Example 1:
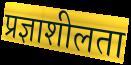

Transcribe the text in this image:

प्रज्ञाशीलता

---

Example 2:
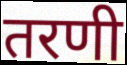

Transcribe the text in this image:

तरणी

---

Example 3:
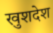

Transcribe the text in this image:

खुशदेश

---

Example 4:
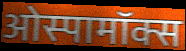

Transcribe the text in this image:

ओस्पामॉक्स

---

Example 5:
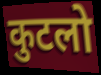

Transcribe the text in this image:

कुटलो